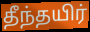
தீந்தயிர்